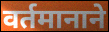
वर्तमानाने